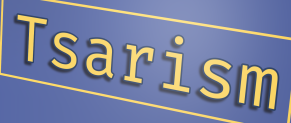
Tsarism